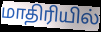
மாதிரியில்